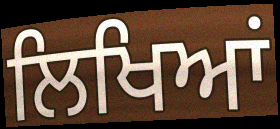
ਲਿਖਿਆਂ